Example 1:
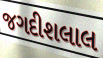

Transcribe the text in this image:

જગદીશલાલ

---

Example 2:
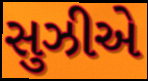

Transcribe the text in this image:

સુઝીએ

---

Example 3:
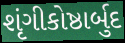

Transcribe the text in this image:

શૃંગીકોષ્ઠાર્બુદ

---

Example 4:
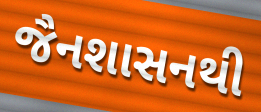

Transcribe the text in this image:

જૈનશાસનથી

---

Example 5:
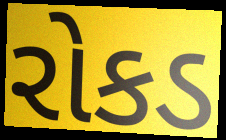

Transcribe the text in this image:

રોકડ